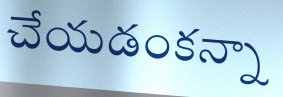
చేయడంకన్నా